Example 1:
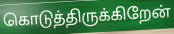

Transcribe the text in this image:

கொடுத்திருக்கிறேன்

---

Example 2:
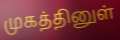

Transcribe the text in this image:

முகத்தினுள்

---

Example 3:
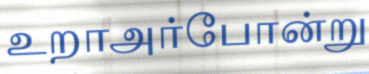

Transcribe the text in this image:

உறாஅர்போன்று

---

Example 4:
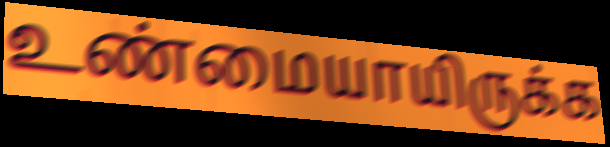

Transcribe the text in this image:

உண்மையாயிருக்க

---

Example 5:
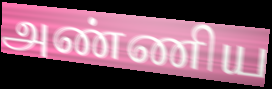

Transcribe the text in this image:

அண்ணிய